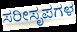
ಸರೀಸೃಪಗಳ